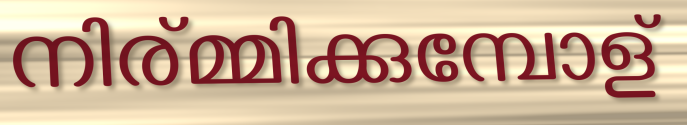
നിര്മ്മിക്കുമ്പോള്